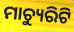
ମାଚ୍ୟୁରିଟି